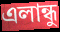
এলান্ধু